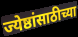
ज्येष्ठांसाठीच्या